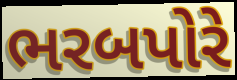
ભરબપોરે